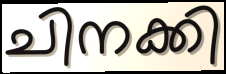
ചിനക്കി